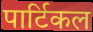
पार्टिकल